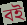
বই